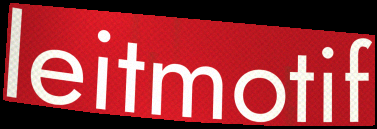
leitmotif